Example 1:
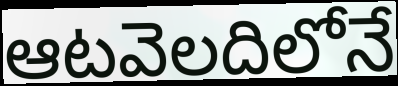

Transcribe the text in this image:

ఆటవెలదిలోనే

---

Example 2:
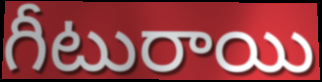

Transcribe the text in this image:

గీటురాయి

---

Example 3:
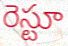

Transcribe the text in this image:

రెస్టూ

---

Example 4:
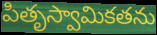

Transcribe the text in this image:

పితృస్వామికతను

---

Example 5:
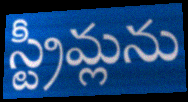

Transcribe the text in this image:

స్ట్రీమ్లను